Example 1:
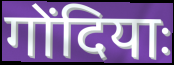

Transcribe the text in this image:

गोंदियाः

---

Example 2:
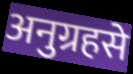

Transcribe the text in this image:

अनुग्रहसे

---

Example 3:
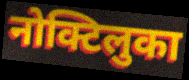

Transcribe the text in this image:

नोक्टिलुका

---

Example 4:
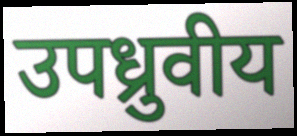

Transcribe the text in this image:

उपध्रुवीय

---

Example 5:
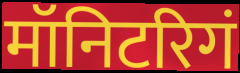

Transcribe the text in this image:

मॉनिटरिगं